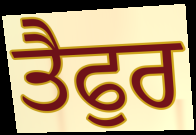
ਤੈਫੁਰ